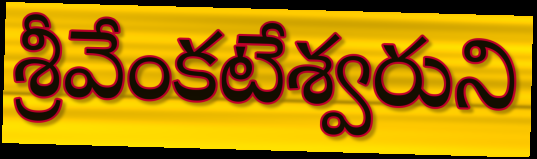
శ్రీవేంకటేశ్వరుని